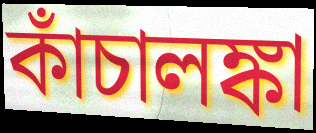
কাঁচালঙ্কা